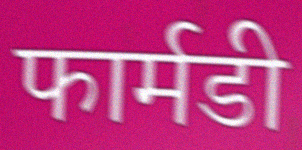
फार्मडी